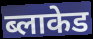
ब्लाकेड